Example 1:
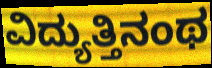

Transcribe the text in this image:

ವಿದ್ಯುತ್ತಿನಂಥ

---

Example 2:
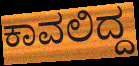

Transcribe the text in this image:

ಕಾವಲಿದ್ದ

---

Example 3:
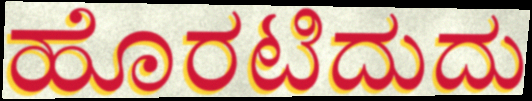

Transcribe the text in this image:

ಹೊರಟಿದುದು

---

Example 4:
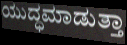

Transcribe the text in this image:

ಯುದ್ಧಮಾಡುತ್ತಾ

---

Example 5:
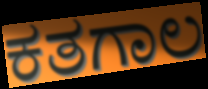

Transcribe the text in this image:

ಕತಗಾಲ